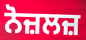
ਨੋਜ਼ਲਜ਼